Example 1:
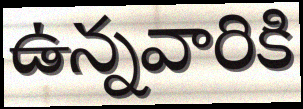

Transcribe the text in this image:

ఉన్నవారికి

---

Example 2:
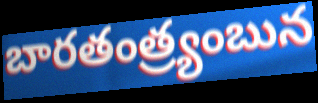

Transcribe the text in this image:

బారతంత్ర్యంబున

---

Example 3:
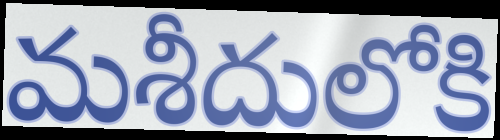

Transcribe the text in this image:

మశీదులోకి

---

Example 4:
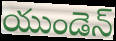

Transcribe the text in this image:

యుండెన్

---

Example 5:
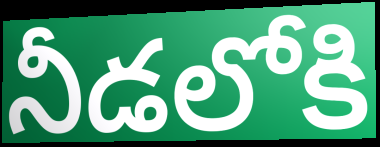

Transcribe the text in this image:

నీడలోకి